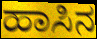
ಹಾಸಿನ